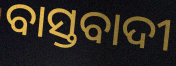
ବାସ୍ତବାଦୀ